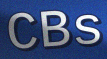
CBs